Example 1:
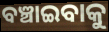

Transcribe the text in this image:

ବଞ୍ଚାଇବାକୁ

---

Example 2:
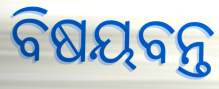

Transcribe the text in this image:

ବିଷୟବନ୍ତ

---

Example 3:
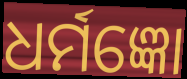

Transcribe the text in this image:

ଧର୍ମଜ୍ଞୋ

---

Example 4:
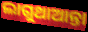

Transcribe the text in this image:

ଲାଗୁଥାଆନ୍ତା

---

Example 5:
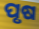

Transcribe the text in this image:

ପୃଷ